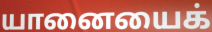
யானையைக்